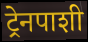
ट्रेनपाशी